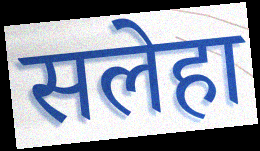
सलेहा